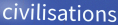
civilisations